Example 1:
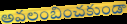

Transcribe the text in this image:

అవలంబించకుండా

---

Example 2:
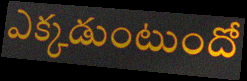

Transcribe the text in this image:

ఎక్కడుంటుందో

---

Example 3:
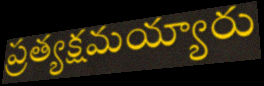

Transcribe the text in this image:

ప్రత్యక్షమయ్యారు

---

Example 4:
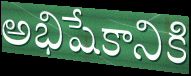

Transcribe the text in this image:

అభిషేకానికి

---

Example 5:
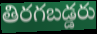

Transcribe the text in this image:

తిరగబడ్డరు